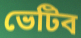
ভেটিব